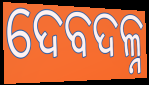
ଦେବଦଳ୍ନ